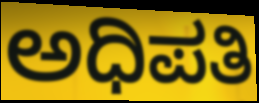
ಅಧಿಪತಿ